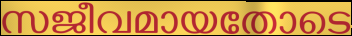
സജീവമായതോടെ